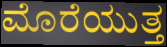
ಮೊರೆಯುತ್ತ